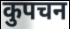
कुपचन